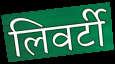
लिवर्टी